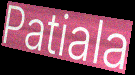
Patiala